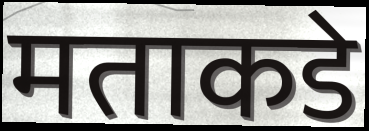
मताकडे